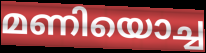
മണിയൊച്ച